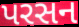
પરસન